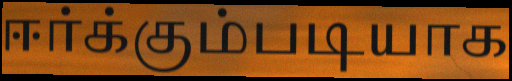
ஈர்க்கும்படியாக